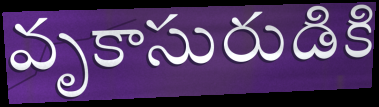
వృకాసురుడికి